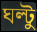
ঘল্টু